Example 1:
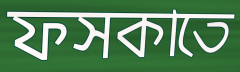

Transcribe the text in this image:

ফসকাতে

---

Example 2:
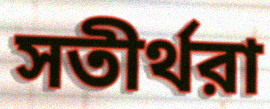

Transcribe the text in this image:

সতীর্থরা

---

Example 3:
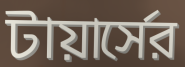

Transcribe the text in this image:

টায়ার্সের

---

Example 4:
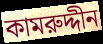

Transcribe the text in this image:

কামরুদ্দীন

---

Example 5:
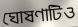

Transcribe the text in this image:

ঘোষণাটিও